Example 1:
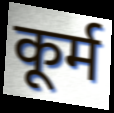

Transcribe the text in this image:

कूर्म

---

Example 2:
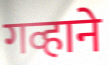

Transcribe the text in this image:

गव्हाने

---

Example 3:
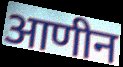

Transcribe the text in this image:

आणीन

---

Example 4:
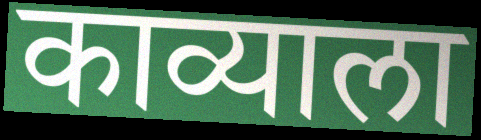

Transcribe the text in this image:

काव्याला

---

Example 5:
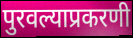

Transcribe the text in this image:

पुरवल्याप्रकरणी